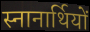
स्नानार्थियों